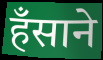
हँसाने